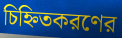
চিহ্নিতকরণের